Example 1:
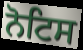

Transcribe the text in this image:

ਨੋਟਿਸ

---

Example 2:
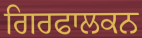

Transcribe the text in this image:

ਗਿਰਫਾਲਕਨ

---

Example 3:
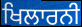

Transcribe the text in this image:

ਖਿਲਾਰਨੀ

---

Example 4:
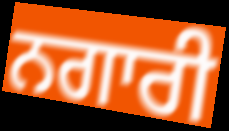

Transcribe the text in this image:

ਨਗਾਰੀ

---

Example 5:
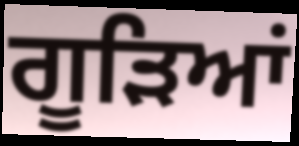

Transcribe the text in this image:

ਗੂੜਿਆਂ